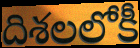
దిశలలోకీ